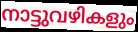
നാട്ടുവഴികളും